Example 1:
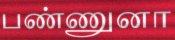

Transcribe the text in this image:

பண்ணுனா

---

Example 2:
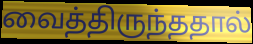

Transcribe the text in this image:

வைத்திருந்ததால்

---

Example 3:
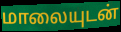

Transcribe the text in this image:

மாலையுடன்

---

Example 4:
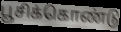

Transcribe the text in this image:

பூசிக்கொண்டு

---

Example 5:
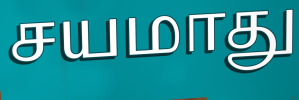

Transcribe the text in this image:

சயமாது